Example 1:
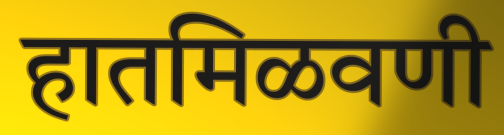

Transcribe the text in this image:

हातमिळवणी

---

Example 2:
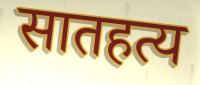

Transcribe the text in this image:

सातहत्य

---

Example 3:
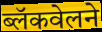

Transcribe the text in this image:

ब्लॅकवेलने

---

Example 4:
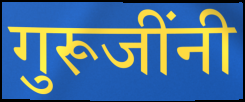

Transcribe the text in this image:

गुरूजींनी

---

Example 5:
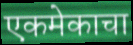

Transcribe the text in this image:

एकमेकाचा